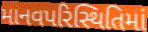
માનવપરિસ્થિતિમાં